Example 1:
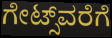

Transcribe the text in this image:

ಗೇಟ್ಸ್‌ವರೆಗೆ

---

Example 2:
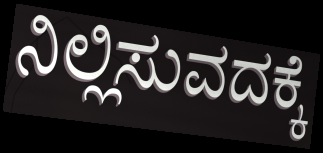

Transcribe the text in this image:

ನಿಲ್ಲಿಸುವದಕ್ಕೆ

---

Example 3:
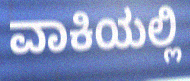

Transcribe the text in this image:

ವಾಕಿಯಲ್ಲಿ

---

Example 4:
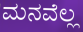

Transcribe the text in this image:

ಮನವೆಲ್ಲ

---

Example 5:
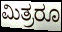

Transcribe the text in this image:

ಮಿತ್ರರೂ